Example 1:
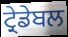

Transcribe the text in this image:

ਟ੍ਰੇਡੇਬਲ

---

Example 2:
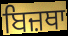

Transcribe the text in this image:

ਬਿਜ਼ਥਾ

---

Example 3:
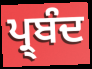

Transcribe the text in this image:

ਪ੍ਰ੍ਬੰਦ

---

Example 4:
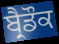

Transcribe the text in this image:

ਬ੍ਰੈਡੌਕ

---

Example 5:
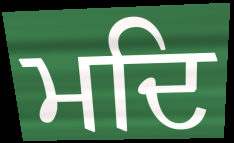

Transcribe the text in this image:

ਮਦਿ